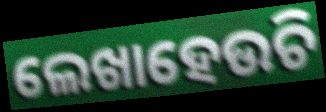
ଲେଖାହେଉଚି